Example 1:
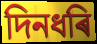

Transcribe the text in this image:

দিনধৰি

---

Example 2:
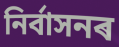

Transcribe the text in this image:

নিৰ্বাসনৰ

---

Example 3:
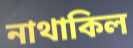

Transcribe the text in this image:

নাথাকিল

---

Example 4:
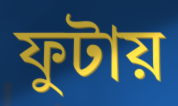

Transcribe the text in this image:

ফুটায়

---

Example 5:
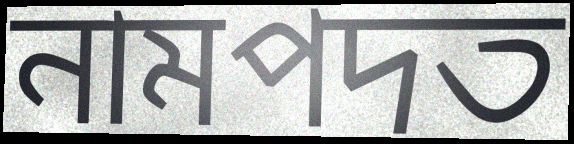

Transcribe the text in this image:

নামপদত